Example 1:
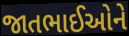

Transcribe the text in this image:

જાતભાઈઓને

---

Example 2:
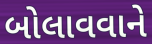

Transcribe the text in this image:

બોલાવવાને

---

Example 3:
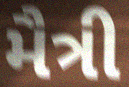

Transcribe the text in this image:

મૈત્રી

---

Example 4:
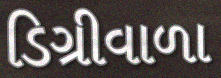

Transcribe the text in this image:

ડિગ્રીવાળા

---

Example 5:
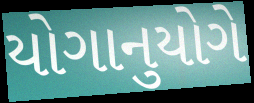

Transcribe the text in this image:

યોગાનુયોગે